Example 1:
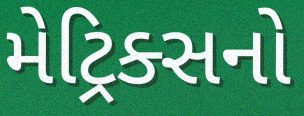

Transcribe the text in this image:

મેટ્રિક્સનો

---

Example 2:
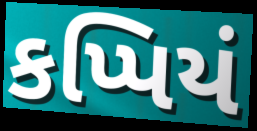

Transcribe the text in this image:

કપ્પિયં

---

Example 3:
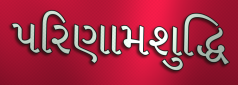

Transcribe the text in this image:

પરિણામશુદ્ધિ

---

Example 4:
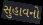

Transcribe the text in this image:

સુહાવનો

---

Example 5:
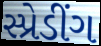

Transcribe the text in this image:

સ્પ્રેડીંગ